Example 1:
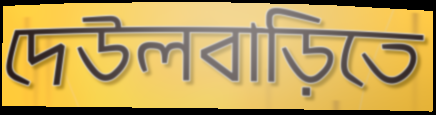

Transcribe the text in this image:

দেউলবাড়িতে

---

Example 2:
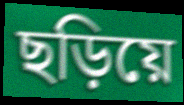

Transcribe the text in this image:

ছড়িয়ে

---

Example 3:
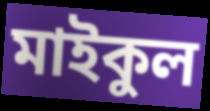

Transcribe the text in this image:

মাইকুল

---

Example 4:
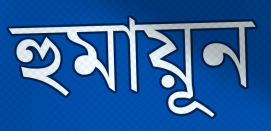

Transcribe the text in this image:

হুমায়ূন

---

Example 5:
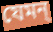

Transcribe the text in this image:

যেমন্